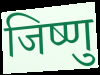
जिष्णु